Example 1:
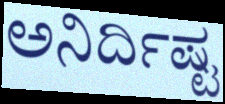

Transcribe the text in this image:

ಅನಿರ್ದಿಷ್ಟ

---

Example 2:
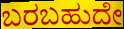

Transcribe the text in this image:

ಬರಬಹುದೇ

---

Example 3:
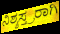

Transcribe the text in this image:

ನಿಶ್ಶಸ್ತ್ರರಾಗಿ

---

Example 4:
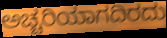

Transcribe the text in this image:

ಅಚ್ಚರಿಯಾಗದಿರದು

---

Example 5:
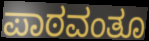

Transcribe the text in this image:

ಪಾಠವಂತೂ